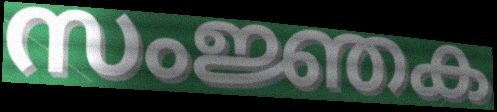
സംജ്ഞക